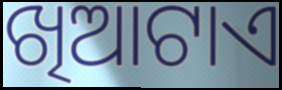
ଖିଆଟାଏ